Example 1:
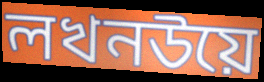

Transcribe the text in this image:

লখনউয়ে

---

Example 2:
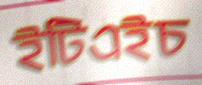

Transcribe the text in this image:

ইটিএইচ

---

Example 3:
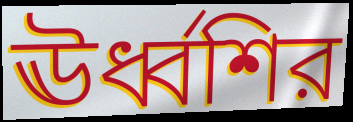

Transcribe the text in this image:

ঊর্ধ্বশির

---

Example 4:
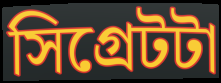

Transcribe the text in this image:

সিগ্রেটটা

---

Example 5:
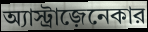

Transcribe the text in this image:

অ্যাস্ট্রাজ়েনেকার